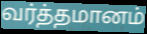
வர்த்தமானம்